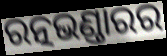
ରତ୍ନଭଣ୍ଡାରର